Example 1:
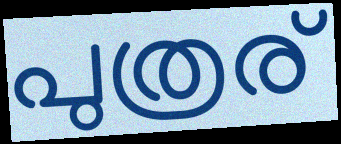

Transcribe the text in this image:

പുത്രര്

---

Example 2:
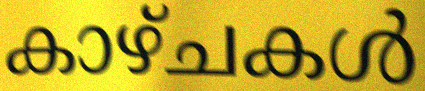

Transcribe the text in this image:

കാഴ്ചകൾ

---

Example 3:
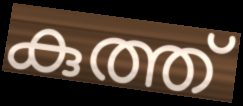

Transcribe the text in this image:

കുത്ത്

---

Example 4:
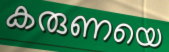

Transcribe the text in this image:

കരുണയെ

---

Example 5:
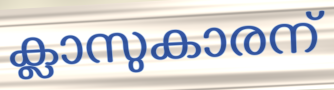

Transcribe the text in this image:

ക്ലാസുകാരന്